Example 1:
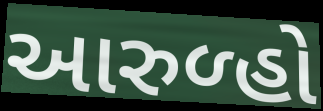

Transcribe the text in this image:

આરુળ્હો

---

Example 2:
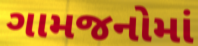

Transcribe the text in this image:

ગામજનોમાં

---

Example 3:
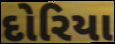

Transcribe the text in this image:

દોરિયા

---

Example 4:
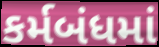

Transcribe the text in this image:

કર્મબંધમાં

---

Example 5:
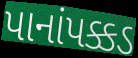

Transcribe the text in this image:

પાનાંપક્કડ